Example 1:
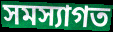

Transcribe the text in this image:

সমস্যাগত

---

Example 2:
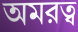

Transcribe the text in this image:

অমরত্ব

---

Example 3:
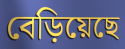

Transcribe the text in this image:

বেড়িয়েছে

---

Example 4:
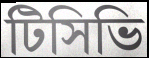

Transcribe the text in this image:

টিসিভি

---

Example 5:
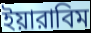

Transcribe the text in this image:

ইয়ারাবিম